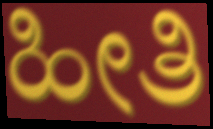
ಹೀತಿ